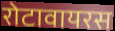
रोटावायरस